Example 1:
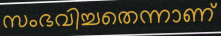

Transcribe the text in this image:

സംഭവിച്ചതെന്നാണ്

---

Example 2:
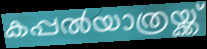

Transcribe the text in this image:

കപ്പൽയാത്രയ്ക്ക്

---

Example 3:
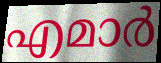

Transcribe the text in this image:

എമാർ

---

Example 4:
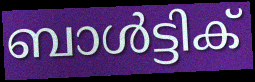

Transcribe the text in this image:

ബാൾട്ടിക്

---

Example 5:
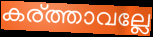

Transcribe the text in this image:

കര്ത്താവല്ലേ